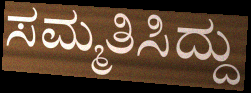
ಸಮ್ಮತಿಸಿದ್ದು